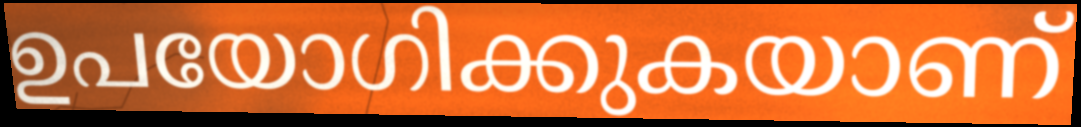
ഉപയോഗിക്കുകയാണ്